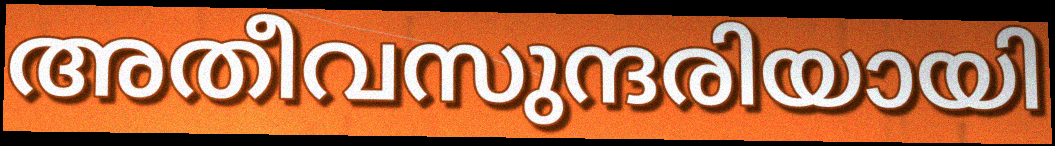
അതീവസുന്ദരിയായി